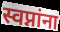
स्वप्नांना